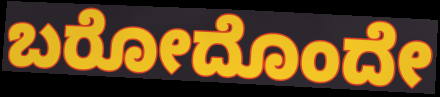
ಬರೋದೊಂದೇ